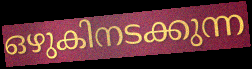
ഒഴുകിനടക്കുന്ന